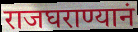
राजघराण्यानं